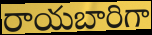
రాయబారిగా